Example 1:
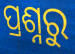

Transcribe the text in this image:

ପ୍ରଶ୍ନରୁ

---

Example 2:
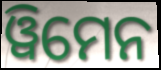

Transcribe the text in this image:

ୱିମେନ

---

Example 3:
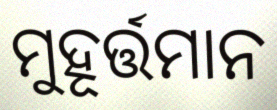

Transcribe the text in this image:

ମୁହୂର୍ତ୍ତମାନ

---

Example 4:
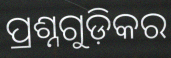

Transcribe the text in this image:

ପ୍ରଶ୍ନଗୁଡ଼ିକର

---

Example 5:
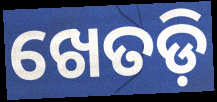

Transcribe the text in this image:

ଖେତଡ଼ି